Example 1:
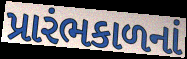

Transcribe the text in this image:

પ્રારંભકાળનાં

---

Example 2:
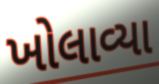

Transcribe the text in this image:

ખોલાવ્યા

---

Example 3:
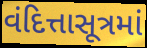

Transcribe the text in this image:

વંદિત્તાસૂત્રમાં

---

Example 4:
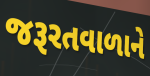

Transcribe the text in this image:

જરૂરતવાળાને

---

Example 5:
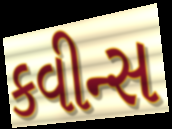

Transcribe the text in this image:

કવીન્સ